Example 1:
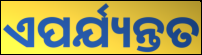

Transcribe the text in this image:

ଏପର୍ଯ୍ୟନ୍ତତ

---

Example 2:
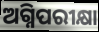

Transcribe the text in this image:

ଅଗ୍ନିପରୀକ୍ଷା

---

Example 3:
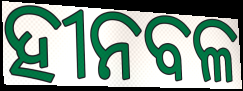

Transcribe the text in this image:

ହୀନବଳ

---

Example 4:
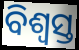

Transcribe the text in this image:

ବିଶ୍ବସ୍ତ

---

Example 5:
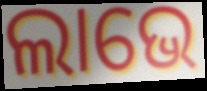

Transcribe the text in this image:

ଲାଭେ